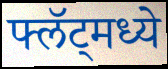
फ्लॅट्मध्ये